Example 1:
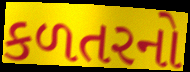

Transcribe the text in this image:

કળતરનો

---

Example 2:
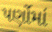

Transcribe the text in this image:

પર્ણોમાં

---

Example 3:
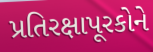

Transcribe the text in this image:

પ્રતિરક્ષાપૂરકોને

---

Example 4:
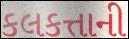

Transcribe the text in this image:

કલકત્તાની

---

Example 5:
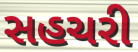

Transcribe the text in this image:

સહચરી